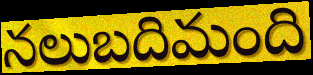
నలుబదిమంది